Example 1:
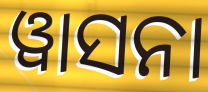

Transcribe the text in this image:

ୱାସନା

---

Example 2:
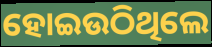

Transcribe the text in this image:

ହୋଇଉଠିଥିଲେ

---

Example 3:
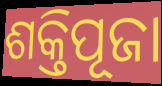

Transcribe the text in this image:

ଶକ୍ତିପୂଜା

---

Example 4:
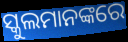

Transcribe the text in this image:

ସ୍କୁଲମାନଙ୍କରେ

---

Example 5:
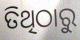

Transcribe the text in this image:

ତିଥିଠାରୁ